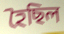
হৈছিল